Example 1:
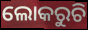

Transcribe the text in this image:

ଲୋକରୁଚି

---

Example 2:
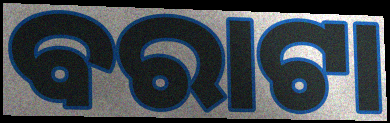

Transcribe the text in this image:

ବରାଟା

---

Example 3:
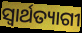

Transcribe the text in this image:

ସ୍ୱାର୍ଥତ୍ୟାଗୀ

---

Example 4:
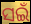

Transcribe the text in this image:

ସଇଁ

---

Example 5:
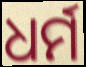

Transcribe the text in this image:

ଧର୍ମ